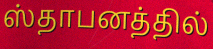
ஸ்தாபனத்தில்